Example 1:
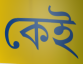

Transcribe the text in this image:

কেই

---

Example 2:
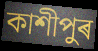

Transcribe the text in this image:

কাশীপুৰ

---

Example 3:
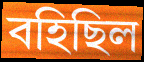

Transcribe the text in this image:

বহিছিল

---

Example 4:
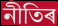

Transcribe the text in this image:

নীতিৰ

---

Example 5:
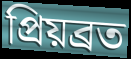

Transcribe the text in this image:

প্ৰিয়ব্ৰত